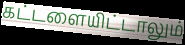
கட்டளையிட்டாலும்